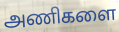
அணிகளை